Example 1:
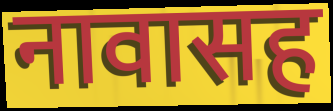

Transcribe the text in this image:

नावासह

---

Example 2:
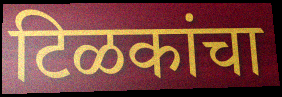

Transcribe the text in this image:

टिळकांचा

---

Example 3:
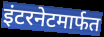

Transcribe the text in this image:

इंटरनेटमार्फत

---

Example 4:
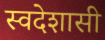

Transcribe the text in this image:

स्वदेशासी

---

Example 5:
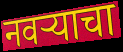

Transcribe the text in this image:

नवऱ्याचा